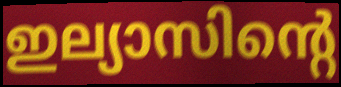
ഇല്യാസിന്റെ